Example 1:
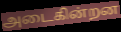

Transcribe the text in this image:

அடைகின்றன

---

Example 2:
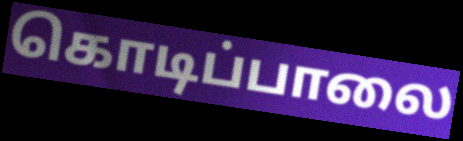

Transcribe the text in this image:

கொடிப்பாலை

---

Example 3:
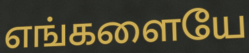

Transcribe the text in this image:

எங்களையே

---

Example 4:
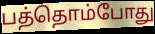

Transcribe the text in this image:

பத்தொம்போது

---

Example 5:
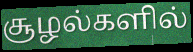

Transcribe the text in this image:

சூழல்களில்